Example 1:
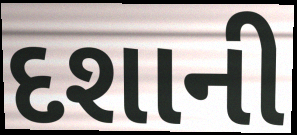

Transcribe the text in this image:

દશાની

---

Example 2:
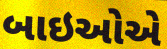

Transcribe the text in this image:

બાઇઓએ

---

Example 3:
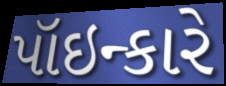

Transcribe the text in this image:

પૉઇન્કારે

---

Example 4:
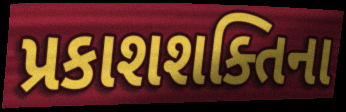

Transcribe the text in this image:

પ્રકાશશક્તિના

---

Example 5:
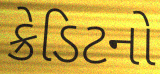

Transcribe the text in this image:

ક્રેડિટનો